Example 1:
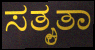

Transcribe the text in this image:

ಸತ್ಕೃತಾ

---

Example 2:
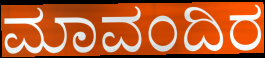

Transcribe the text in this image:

ಮಾವಂದಿರ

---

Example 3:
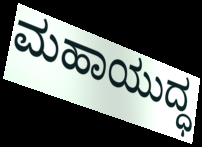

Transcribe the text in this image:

ಮಹಾಯುದ್ಧ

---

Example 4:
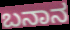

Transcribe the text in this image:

ಬನಾನ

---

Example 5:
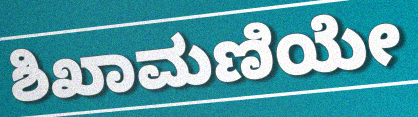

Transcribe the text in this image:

ಶಿಖಾಮಣಿಯೇ